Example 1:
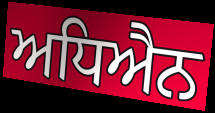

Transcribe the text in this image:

ਅਧਿਐਨ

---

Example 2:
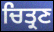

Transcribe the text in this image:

ਚਿਤ੍ਰਣ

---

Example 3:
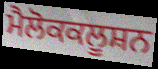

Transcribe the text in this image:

ਮੈਲੋਕਕਲੂਸ਼ਨ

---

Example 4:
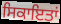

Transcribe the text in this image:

ਸਿਕਾਇਤਾਂ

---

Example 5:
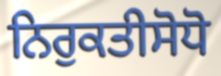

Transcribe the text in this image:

ਨਿਰੁਕਤੀਸੋਧੋ